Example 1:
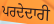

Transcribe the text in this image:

ਪਰਦੇਦਾਰੀ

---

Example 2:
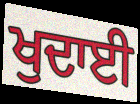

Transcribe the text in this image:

ਖੁਦਾਈ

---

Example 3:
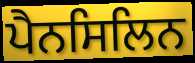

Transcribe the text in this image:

ਪੈਨਸਿਲਿਨ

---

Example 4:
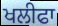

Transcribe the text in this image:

ਖਲੀਫਾ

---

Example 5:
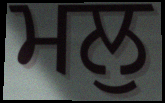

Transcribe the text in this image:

ਮਲੁ